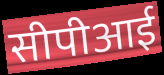
सीपीआई